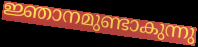
ജ്ഞാനമുണ്ടാകുന്നു